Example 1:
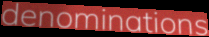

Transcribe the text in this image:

denominations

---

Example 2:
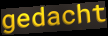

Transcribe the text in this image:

gedacht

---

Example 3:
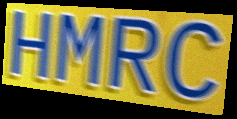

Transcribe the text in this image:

HMRC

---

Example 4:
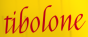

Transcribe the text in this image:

tibolone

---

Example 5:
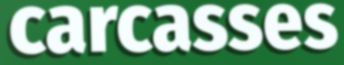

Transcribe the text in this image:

carcasses